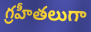
గ్రహీతలుగా